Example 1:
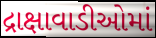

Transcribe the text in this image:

દ્રાક્ષાવાડીઓમાં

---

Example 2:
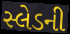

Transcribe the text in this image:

સ્લેડની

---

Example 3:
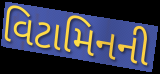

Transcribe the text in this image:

વિટામિનની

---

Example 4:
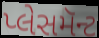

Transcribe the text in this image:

પ્લેસમૅન્ટ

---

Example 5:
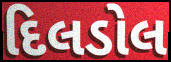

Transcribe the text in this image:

દિલડોલ